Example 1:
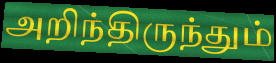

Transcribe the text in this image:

அறிந்திருந்தும்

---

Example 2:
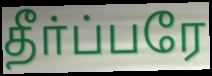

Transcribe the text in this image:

தீர்ப்பரே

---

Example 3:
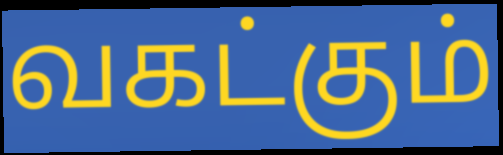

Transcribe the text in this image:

வகட்கும்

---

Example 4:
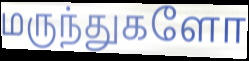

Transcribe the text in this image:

மருந்துகளோ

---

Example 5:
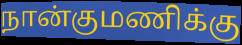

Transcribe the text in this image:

நான்குமணிக்கு